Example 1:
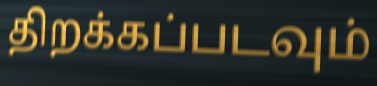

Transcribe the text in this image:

திறக்கப்படவும்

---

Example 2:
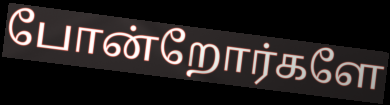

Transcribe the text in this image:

போன்றோர்களே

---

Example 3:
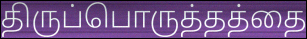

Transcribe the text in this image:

திருப்பொருத்தத்தை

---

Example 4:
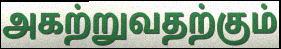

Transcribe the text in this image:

அகற்றுவதற்கும்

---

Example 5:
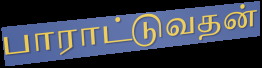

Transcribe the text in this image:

பாராட்டுவதன்